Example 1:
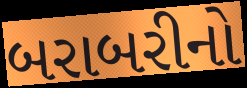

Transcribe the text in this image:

બરાબરીનો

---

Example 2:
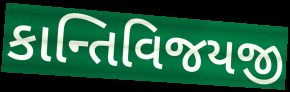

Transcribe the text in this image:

કાન્તિવિજયજી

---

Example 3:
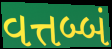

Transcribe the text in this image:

વત્તબ્બં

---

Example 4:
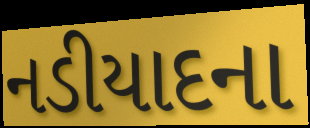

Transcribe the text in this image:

નડીયાદના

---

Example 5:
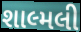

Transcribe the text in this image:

શાલ્મલી